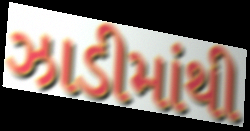
ઝાડીમાંથી